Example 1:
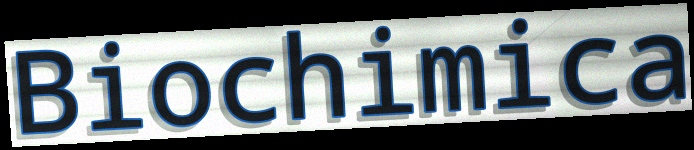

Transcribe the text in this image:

Biochimica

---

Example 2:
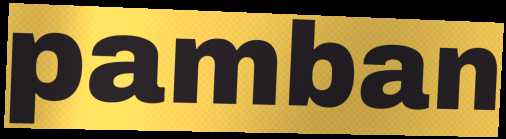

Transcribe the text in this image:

pamban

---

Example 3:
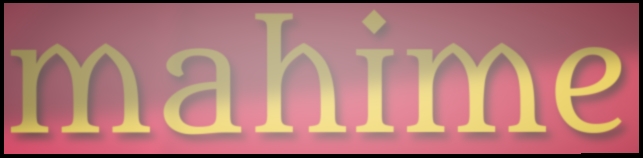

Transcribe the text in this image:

mahime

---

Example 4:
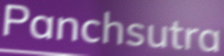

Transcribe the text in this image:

Panchsutra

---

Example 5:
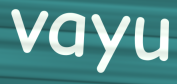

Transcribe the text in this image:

vayu